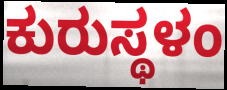
ಕುರುಸ್ಥಳಂ